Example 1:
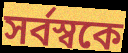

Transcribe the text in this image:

সর্বস্বকে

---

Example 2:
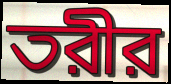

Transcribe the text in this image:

তরীর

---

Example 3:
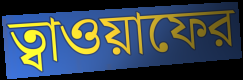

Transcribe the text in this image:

ত্বাওয়াফের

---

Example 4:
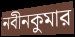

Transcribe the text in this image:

নবীনকুমার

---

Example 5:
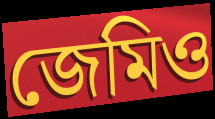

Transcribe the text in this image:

জেমিও